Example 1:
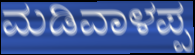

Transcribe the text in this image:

ಮಡಿವಾಳಪ್ಪ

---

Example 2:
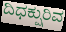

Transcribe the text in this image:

ದಿಧಕ್ಷುರಿವ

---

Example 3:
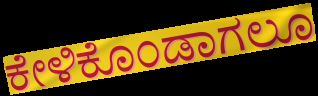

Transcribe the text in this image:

ಕೇಳಿಕೊಂಡಾಗಲೂ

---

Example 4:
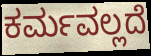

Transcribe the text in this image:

ಕರ್ಮವಲ್ಲದೆ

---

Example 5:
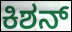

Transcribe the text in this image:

ಕಿಶನ್